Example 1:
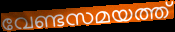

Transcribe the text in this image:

വേണ്ടസമയത്ത്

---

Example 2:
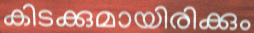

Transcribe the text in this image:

കിടക്കുമായിരിക്കും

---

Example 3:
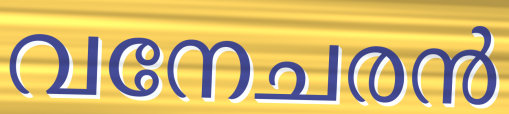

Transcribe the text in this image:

വനേചരൻ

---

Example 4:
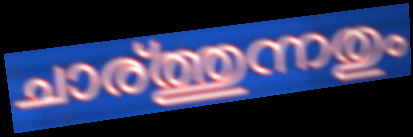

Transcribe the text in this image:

ചാര്ത്തുന്നതും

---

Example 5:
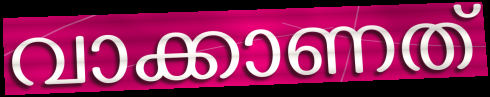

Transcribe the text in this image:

വാക്കാണത്